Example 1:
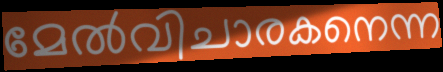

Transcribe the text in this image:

മേൽവിചാരകനെന്ന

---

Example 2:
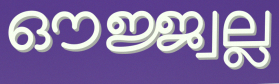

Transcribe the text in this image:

ഔജ്ജ്വല്ല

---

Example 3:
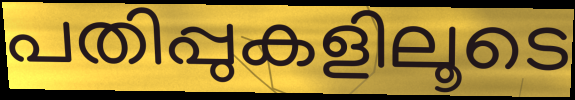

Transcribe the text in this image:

പതിപ്പുകളിലൂടെ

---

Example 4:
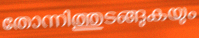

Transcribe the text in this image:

തോന്നിത്തുടങ്ങുകയും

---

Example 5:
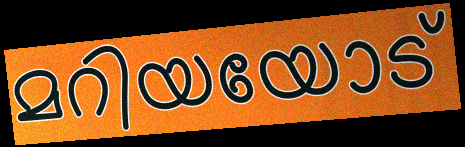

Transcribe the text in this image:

മറിയയോട്